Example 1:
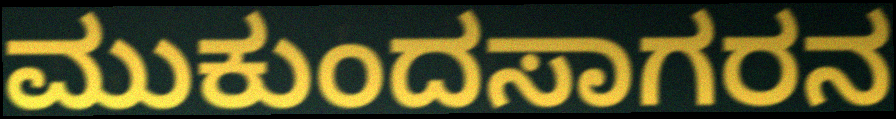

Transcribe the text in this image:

ಮುಕುಂದಸಾಗರನ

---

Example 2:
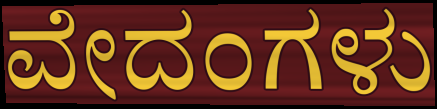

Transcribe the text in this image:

ವೇದಂಗಳು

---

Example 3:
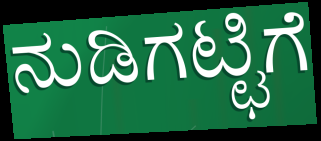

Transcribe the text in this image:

ನುಡಿಗಟ್ಟಿಗೆ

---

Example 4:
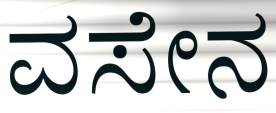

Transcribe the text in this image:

ವಸೇನ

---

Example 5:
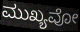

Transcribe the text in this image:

ಮುಖ್ಯವೋ